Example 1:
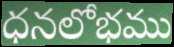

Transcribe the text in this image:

ధనలోభము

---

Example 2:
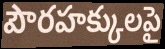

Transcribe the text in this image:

పౌరహక్కులపై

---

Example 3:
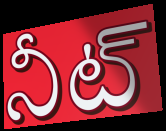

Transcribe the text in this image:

నీట్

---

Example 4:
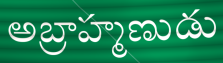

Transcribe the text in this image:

అబ్రాహ్మణుడు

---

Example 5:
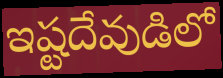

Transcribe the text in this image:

ఇష్టదేవుడిలో